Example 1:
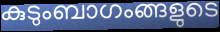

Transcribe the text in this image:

കുടുംബാഗംങ്ങളുടെ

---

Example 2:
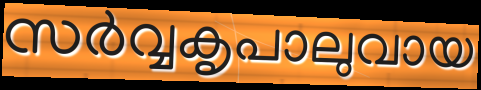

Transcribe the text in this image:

സർവ്വകൃപാലുവായ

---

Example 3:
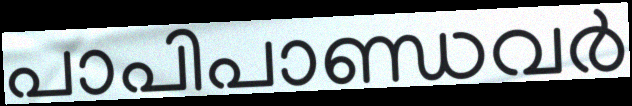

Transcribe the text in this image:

പാപിപാണ്ഡവർ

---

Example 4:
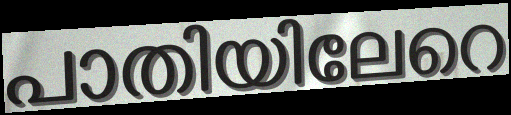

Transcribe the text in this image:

പാതിയിലേറെ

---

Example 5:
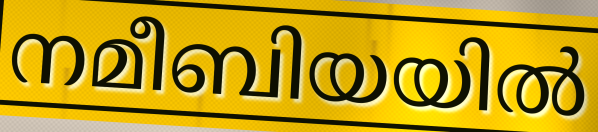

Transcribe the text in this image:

നമീബിയയിൽ